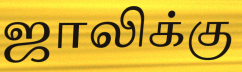
ஜாலிக்கு